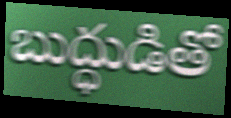
బుద్ధుడితో